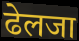
ढेलजा